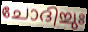
ചോദിച്ചുഃ